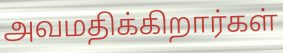
அவமதிக்கிறார்கள்